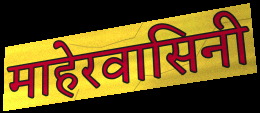
माहेरवासिनी